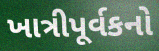
ખાત્રીપૂર્વકનો